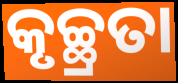
କୃଚ୍ଛ୍ରତା